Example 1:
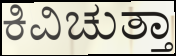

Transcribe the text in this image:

ಕಿವಿಚುತ್ತಾ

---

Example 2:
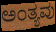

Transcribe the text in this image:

ಅಂತ್ಯವು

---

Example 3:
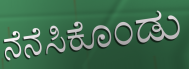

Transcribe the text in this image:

ನೆನೆಸಿಕೊಂಡು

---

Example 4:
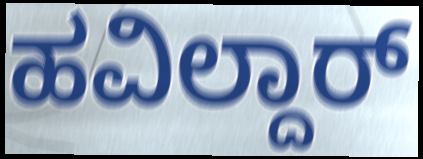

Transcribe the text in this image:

ಹವಿಲ್ದಾರ್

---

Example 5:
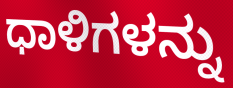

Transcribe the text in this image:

ಧಾಳಿಗಳನ್ನು